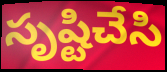
సృష్టిచేసి